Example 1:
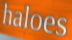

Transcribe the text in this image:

haloes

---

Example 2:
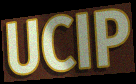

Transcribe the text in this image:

UCIP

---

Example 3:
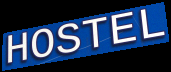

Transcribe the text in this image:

HOSTEL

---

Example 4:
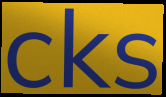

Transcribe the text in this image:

cks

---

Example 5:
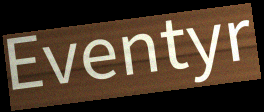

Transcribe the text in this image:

Eventyr